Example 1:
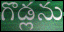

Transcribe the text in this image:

గొడ్లను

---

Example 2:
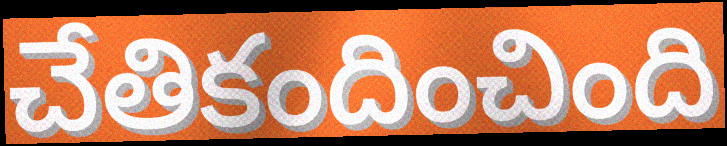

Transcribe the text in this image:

చేతికందించింది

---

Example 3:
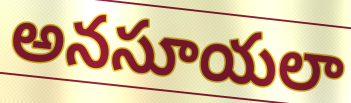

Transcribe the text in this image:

అనసూయలా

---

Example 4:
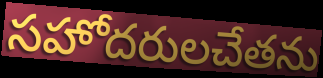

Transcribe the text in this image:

సహోదరులచేతను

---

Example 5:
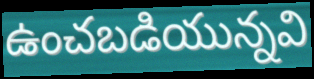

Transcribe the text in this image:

ఉంచబడియున్నవి